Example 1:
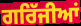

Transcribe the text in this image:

ਗਰਿੱਜੀਆਂ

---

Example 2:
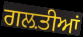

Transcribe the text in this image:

ਗਲ਼ਤੀਆਂ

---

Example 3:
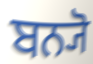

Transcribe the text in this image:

ਬਨ੍ਯੋ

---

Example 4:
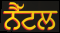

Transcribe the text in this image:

ਨੈੱਟਲ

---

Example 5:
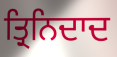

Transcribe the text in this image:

ਤ੍ਰਿਨਿਦਾਦ